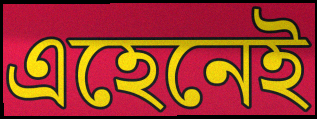
এহেনেই